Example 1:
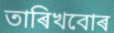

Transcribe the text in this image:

তাৰিখবোৰ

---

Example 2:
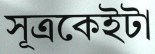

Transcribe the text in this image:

সূত্ৰকেইটা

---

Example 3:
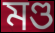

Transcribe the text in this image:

মণ্ড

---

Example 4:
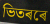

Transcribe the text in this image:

ভিতৰৰে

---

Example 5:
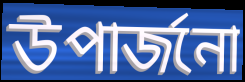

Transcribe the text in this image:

উপাৰ্জনো